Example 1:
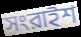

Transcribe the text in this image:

সংরাইশ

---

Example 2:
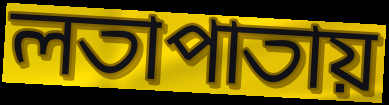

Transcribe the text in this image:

লতাপাতায়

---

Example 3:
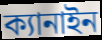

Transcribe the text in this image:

ক্যানাইন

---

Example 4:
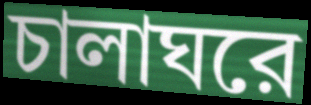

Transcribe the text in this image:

চালাঘরে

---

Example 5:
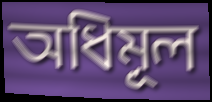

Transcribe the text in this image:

অধিমূল